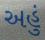
અહું